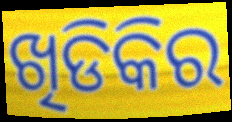
ଖିଡିକିର